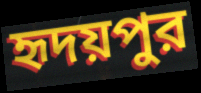
হৃদয়পুর